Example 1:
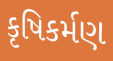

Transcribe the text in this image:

કૃષિકર્મણ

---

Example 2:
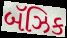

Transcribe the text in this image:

બૅઝિક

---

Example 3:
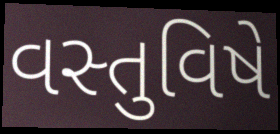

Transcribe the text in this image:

વસ્તુવિષે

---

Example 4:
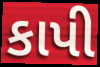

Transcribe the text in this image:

કાપી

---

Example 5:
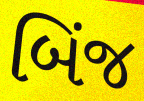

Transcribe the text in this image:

બિંજ